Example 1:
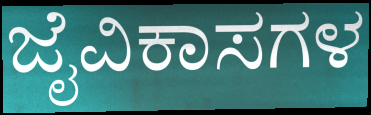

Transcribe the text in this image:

ಜೈವಿಕಾಸಗಳ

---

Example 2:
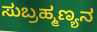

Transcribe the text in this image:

ಸುಬ್ರಹ್ಮಣ್ಯನ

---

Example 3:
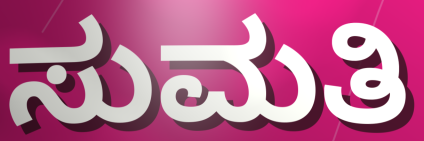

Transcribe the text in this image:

ಸುಮತಿ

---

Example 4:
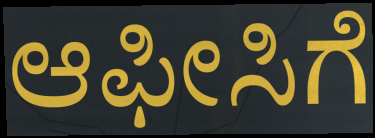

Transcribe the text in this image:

ಆಫೀಸಿಗೆ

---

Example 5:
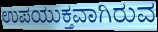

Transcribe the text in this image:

ಉಪಯುಕ್ತವಾಗಿರುವ